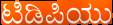
ಟಿಡಿಪಿಯು